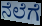
ನೆಲೆಗೆ